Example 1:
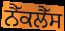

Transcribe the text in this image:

ਨੈੱਕਲੈੱਸ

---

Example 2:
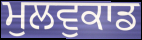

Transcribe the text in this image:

ਮੁਲਵੁਕਾਡ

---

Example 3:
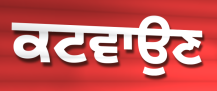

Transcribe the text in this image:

ਕਟਵਾਉਣ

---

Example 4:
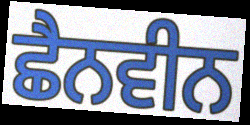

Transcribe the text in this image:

ਛੈਨਵੀਨ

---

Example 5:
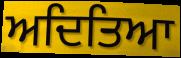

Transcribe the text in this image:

ਅਦਿਤਿਆ